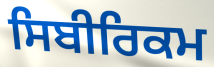
ਸਿਬੀਰਿਕਮ